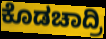
ಕೊಡಚಾದ್ರಿ